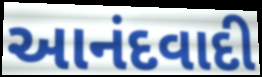
આનંદવાદી